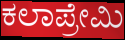
ಕಲಾಪ್ರೇಮಿ